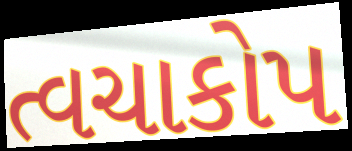
ત્વચાકોપ